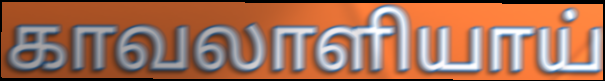
காவலாளியாய்